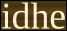
idhe